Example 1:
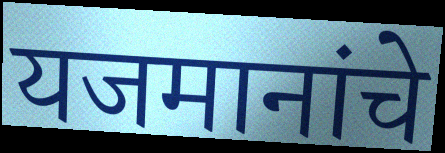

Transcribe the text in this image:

यजमानांचे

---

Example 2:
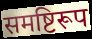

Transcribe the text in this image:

समष्टिरूप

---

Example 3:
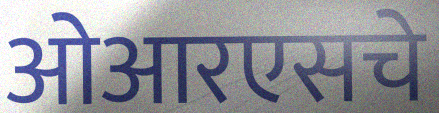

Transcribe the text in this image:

ओआरएसचे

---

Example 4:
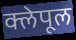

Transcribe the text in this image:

क्लेपूल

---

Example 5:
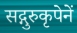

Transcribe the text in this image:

सद्गुरुकृपेनें